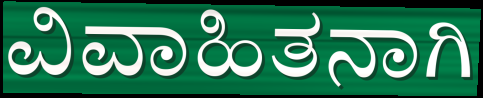
ವಿವಾಹಿತನಾಗಿ